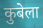
कुबेला